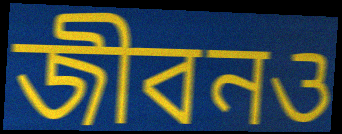
জীবনও